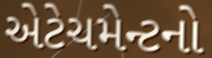
એટેચમેન્ટનો